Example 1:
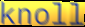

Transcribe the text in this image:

knoll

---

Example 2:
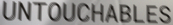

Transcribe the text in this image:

UNTOUCHABLES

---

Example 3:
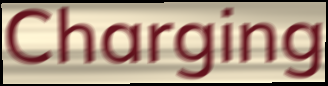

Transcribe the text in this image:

Charging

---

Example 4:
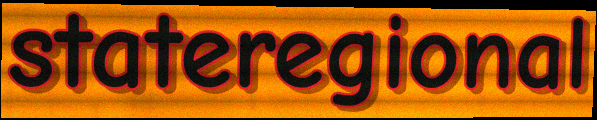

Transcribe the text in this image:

stateregional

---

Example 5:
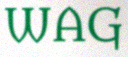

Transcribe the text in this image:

WAG